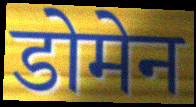
डोमेन